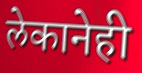
लेकानेही